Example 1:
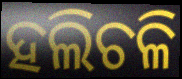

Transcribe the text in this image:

ହଲିଚଳି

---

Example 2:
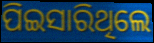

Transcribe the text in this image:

ପିଇସାରିଥିଲେ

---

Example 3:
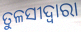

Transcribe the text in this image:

ତୁଳସୀଦ୍ବାରା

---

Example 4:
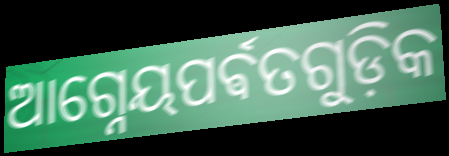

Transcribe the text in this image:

ଆଗ୍ନେୟପର୍ଵତଗୁଡ଼ିକ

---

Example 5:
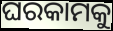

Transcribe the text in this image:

ଘରକାମକୁ